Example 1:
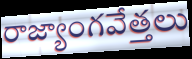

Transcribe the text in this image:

రాజ్యాంగవేత్తలు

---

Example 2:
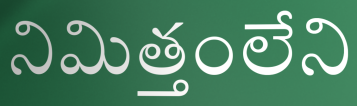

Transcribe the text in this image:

నిమిత్తంలేని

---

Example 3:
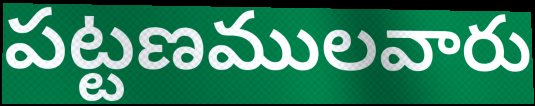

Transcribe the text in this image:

పట్టణములవారు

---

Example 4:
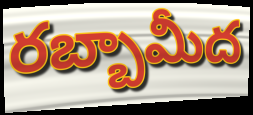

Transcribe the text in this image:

రబ్బామీద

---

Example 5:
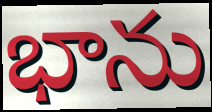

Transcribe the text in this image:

భాను